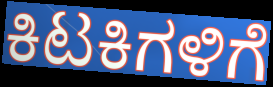
ಕಿಟಕಿಗಳಿಗೆ